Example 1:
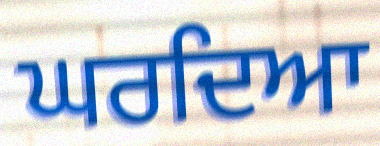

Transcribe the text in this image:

ਘਰਦਿਆ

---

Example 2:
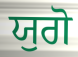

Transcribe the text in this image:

ਯੁਗੋ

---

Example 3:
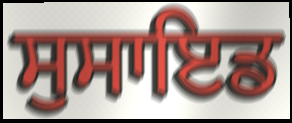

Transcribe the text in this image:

ਸੁਸਾਇਡ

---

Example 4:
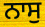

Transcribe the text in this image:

ਨਾਸੁ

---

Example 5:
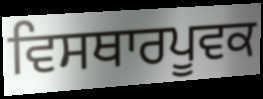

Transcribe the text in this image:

ਵਿਸਥਾਰਪੂਵਕ